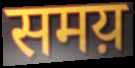
समय़